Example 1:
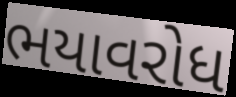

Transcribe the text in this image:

ભયાવરોધ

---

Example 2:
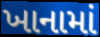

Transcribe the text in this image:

ખાનામાં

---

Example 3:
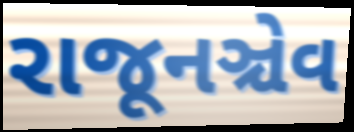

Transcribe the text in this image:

રાજૂનઞ્ચેવ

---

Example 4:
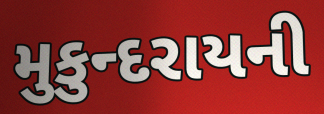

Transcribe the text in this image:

મુકુન્દરાયની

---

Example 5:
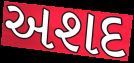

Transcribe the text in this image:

અશદ